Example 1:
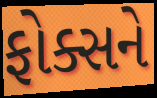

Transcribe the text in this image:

ફોક્સને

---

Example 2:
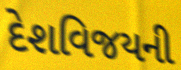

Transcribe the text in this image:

દેશવિજયની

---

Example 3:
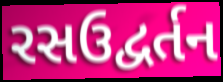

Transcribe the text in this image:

રસઉદ્વર્તન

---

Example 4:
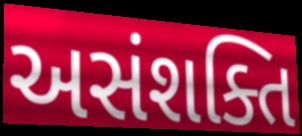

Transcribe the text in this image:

અસંશક્તિ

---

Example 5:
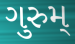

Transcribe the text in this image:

ગુરુમ્